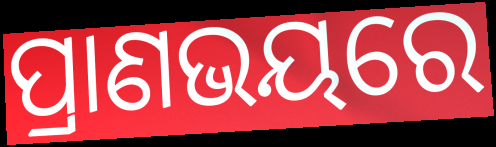
ପ୍ରାଣଭୟରେ